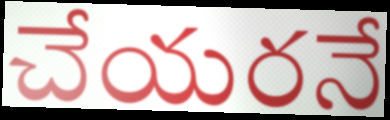
చేయరనే